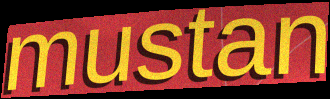
mustan